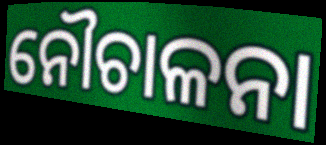
ନୌଚାଳନା